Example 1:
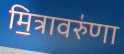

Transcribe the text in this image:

मि॒त्रावरु॑णा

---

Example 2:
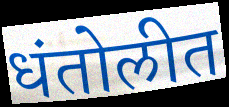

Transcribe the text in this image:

धंतोलीत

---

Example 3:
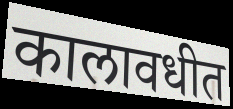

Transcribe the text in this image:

कालावधीत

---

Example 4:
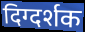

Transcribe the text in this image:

दिग्दर्शक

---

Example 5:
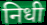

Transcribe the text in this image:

निधी